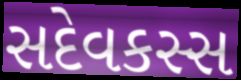
સદેવકસ્સ